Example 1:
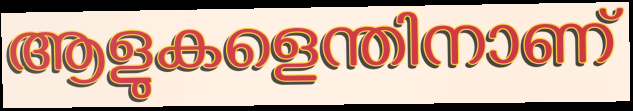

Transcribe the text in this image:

ആളുകളെന്തിനാണ്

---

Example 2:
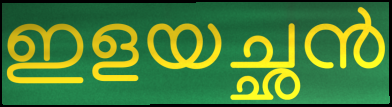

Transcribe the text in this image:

ഇളയച്ഛൻ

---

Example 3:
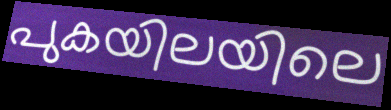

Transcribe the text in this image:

പുകയിലയിലെ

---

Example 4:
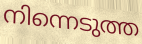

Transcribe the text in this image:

നിന്നെടുത്ത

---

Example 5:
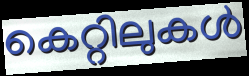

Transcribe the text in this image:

കെറ്റിലുകൾ